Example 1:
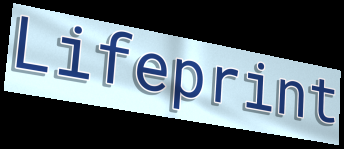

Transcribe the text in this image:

Lifeprint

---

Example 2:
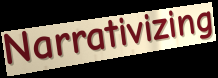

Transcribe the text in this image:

Narrativizing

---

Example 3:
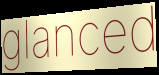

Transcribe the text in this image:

glanced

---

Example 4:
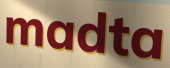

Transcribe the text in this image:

madta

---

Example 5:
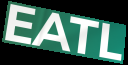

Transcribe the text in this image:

EATL